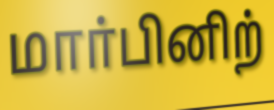
மார்பினிற்